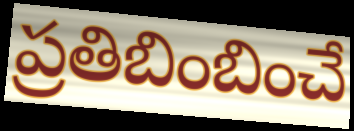
ప్రతిబింబించే